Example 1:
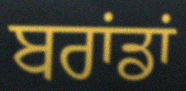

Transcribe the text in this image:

ਬਰਾਂਡਾਂ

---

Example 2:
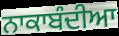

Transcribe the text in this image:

ਨਾਕਾਬੰਦੀਆ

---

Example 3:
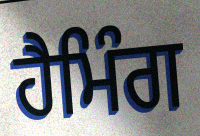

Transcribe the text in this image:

ਹੈਮਿੰਗ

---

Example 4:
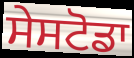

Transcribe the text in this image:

ਸੇਸਟੋਡਾ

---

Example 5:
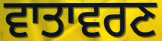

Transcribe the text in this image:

ਵਾਤਾਵਰਣ